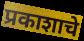
प्रकाशाचे